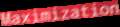
Maximization